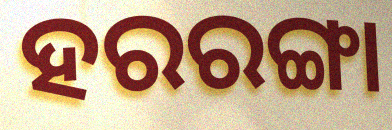
ହରରଙ୍ଗା